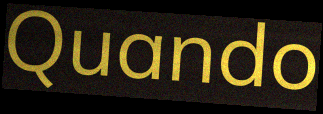
Quando